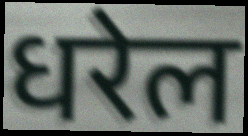
धरेल